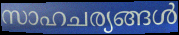
സാഹചര്യങ്ങൾ